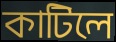
কাটিলে